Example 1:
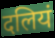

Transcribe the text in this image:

दलियं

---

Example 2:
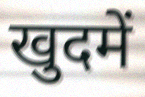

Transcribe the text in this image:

खुदमें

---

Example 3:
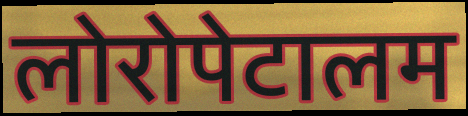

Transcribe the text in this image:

लोरोपेटालम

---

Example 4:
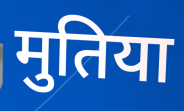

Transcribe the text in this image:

मुतिया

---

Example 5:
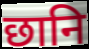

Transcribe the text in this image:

छानि